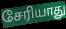
சேரியாது